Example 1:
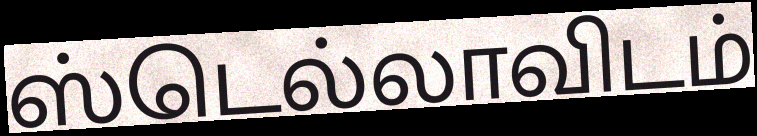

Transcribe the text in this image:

ஸ்டெல்லாவிடம்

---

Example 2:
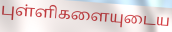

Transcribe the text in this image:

புள்ளிகளையுடைய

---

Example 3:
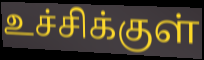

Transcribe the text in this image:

உச்சிக்குள்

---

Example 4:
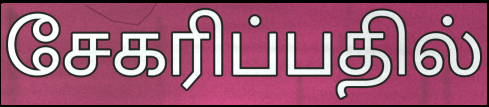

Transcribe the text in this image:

சேகரிப்பதில்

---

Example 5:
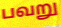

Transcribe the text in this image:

பவறு